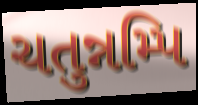
ચતુન્નમ્પિ